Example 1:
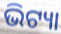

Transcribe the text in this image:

ଭିଟ୍ୟା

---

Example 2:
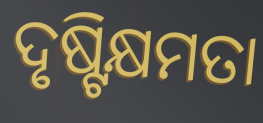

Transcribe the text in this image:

ଦୃଷ୍ଟିକ୍ଷମତା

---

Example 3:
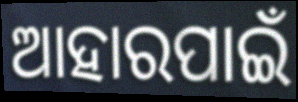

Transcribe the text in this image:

ଆହାରପାଇଁ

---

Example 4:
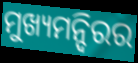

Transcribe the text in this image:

ମୁଖ୍ୟମନ୍ଦିରର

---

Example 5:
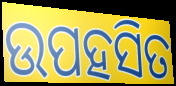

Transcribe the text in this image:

ଉପହସିତ